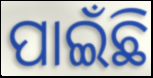
ପାଇଁଛି